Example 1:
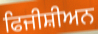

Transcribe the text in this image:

ਫਿਜੀਸ਼ੀਅਨ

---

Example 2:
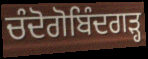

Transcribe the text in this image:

ਚੰਦੋਗੋਬਿੰਦਗੜ੍ਹ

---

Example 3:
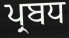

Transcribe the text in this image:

ਪ੍ਰਬਧ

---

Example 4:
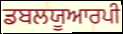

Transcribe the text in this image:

ਡਬਲਯੂਆਰਪੀ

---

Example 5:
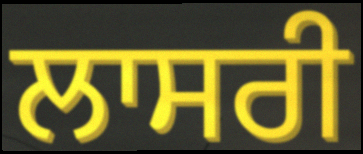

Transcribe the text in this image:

ਲਾਸਰੀ